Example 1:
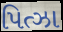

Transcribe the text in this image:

પિત્ઝા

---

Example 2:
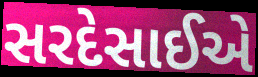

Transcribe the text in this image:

સરદેસાઈએ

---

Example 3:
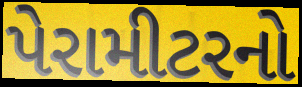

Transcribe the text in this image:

પેરામીટરનો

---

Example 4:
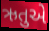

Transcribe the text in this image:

ઋતુએ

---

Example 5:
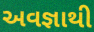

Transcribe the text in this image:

અવજ્ઞાથી